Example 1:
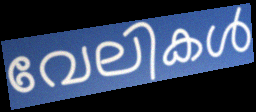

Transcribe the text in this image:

വേലികൾ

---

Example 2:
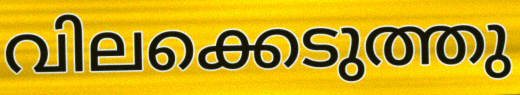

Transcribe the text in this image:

വിലക്കെടുത്തു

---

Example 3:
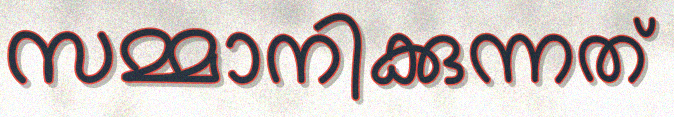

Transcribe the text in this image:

സമ്മാനിക്കുന്നത്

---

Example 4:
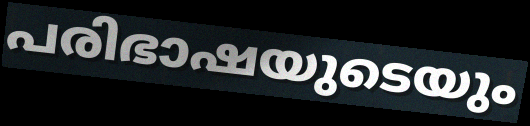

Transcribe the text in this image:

പരിഭാഷയുടെയും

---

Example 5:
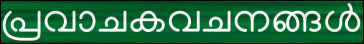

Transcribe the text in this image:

പ്രവാചകവചനങ്ങൾ